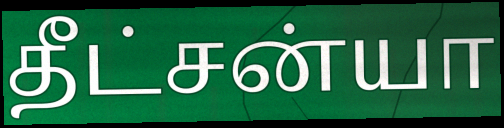
தீட்சன்யா